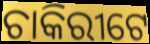
ଚାକିରୀଟେ